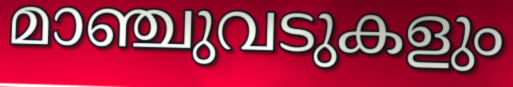
മാഞ്ചുവടുകളും